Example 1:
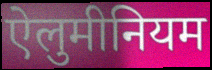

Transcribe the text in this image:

ऐलुमीनियम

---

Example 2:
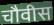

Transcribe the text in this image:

चौवीस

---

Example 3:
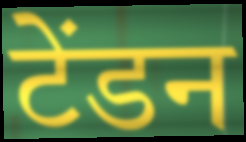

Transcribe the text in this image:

टेंडन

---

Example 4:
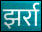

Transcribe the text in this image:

झर्रा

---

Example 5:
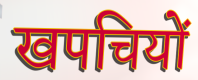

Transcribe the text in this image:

खपचियों